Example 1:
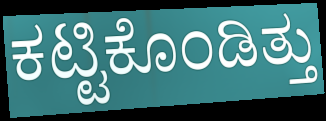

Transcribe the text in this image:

ಕಟ್ಟಿಕೊಂಡಿತ್ತು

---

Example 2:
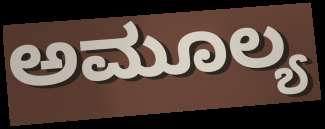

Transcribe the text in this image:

ಅಮೂಲ್ಯ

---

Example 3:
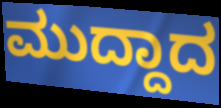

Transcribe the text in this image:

ಮುದ್ದಾದ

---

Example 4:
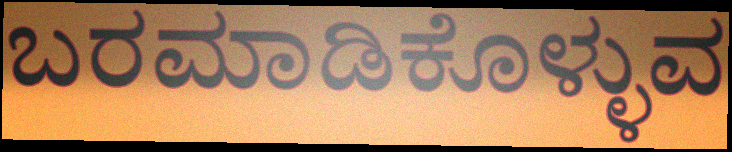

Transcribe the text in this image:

ಬರಮಾಡಿಕೊಳ್ಳುವ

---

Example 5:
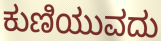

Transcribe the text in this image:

ಕುಣಿಯುವದು